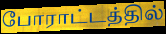
போராட்டத்தில்